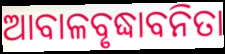
ଆବାଳବୃଦ୍ଧାବନିତା